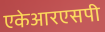
एकेआरएसपी